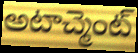
అటాచ్మెంట్